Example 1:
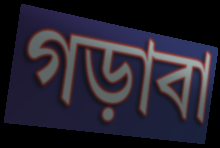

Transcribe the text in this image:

গড়াবা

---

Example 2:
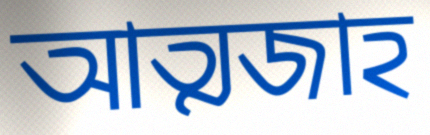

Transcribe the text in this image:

আত্মজাহ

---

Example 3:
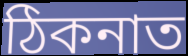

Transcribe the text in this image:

ঠিকনাত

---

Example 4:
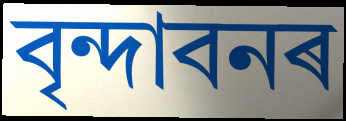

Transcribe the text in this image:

বৃন্দাবনৰ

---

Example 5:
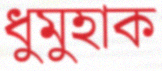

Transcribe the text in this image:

ধুমুহাক